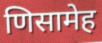
णिसामेह